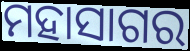
ମହାସାଗର